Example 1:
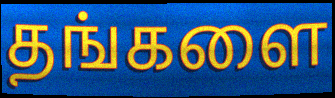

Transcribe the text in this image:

தங்களை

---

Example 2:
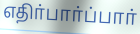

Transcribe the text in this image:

எதிர்பார்ப்பார்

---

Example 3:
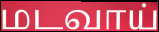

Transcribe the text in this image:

மடவாய்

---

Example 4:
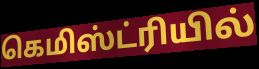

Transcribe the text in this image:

கெமிஸ்ட்ரியில்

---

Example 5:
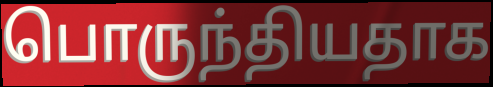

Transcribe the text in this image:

பொருந்தியதாக